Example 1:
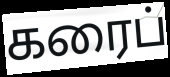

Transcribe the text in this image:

கரைப்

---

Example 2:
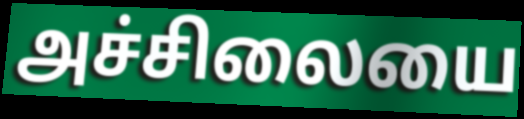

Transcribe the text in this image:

அச்சிலையை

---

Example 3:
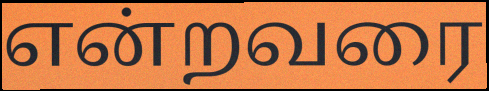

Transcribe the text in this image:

என்றவரை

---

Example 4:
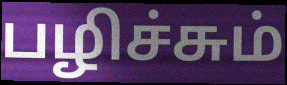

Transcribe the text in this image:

பழிச்சும்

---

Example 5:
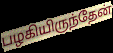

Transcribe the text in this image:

பழகியிருந்தேன்